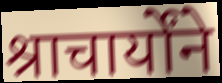
श्राचार्योंने